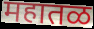
महातळ